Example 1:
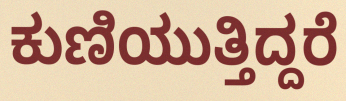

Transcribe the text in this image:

ಕುಣಿಯುತ್ತಿದ್ದರೆ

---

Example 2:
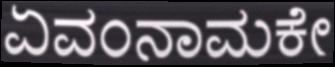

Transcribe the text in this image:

ಏವಂನಾಮಕೇ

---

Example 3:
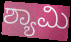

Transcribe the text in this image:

ಶ್ಯಾಮಿ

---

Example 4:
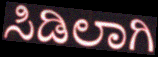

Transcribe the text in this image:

ಸಿಡಿಲಾಗಿ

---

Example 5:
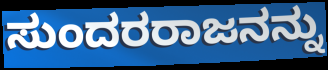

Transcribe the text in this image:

ಸುಂದರರಾಜನನ್ನು